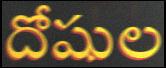
దోషుల